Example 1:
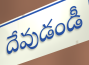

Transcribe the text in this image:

దేవుడండీ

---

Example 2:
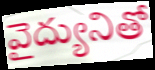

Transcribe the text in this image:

వైద్యునితో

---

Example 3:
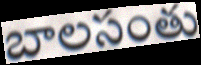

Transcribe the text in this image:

బాలసంతు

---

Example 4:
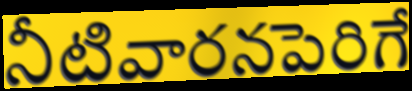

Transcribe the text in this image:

నీటివారనపెరిగే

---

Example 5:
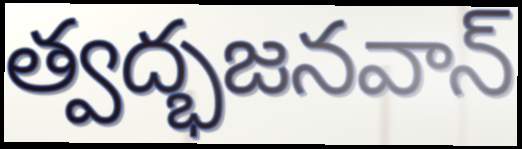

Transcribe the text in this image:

త్వద్భజనవాన్